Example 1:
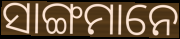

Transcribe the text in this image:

ସାଙ୍ଗମାନେ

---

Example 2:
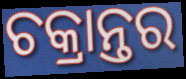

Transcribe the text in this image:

ଚକ୍ରାନ୍ତର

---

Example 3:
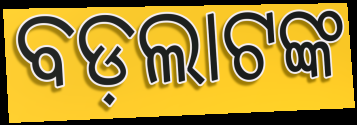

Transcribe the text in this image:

ବଡ଼ଲାଟଙ୍କ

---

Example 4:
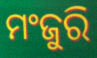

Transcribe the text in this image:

ମଂଜୁରି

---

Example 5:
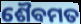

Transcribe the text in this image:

ଶୈବମତ